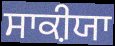
ਸਾਕ਼ੀਯਾ